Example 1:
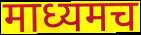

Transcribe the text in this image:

माध्यमच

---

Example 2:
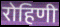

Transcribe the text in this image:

रोहिणी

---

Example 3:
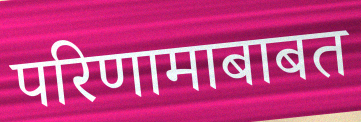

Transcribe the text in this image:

परिणामाबाबत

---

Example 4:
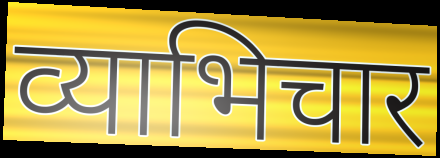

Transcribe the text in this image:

व्याभिचार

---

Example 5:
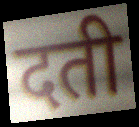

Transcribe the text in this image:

दती